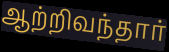
ஆற்றிவந்தார்